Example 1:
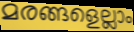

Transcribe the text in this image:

മരങ്ങളെല്ലാം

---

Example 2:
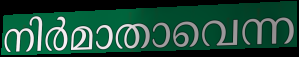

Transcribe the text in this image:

നിർമാതാവെന്ന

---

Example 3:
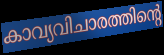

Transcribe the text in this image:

കാവ്യവിചാരത്തിന്റെ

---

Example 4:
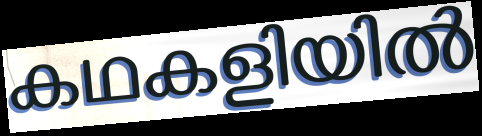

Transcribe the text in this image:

കഥകളിയിൽ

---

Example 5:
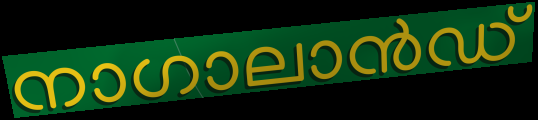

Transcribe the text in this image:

നാഗാലാൻഡ്